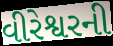
વીરેશ્વરની